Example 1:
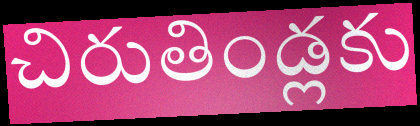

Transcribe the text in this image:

చిరుతిండ్లకు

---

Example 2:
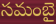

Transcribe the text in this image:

సమంబై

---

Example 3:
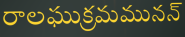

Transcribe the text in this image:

రాలఘుక్రమమునన్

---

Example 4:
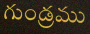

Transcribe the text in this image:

గుండ్రము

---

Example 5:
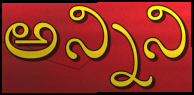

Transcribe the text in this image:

అన్నిని